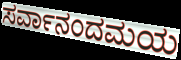
ಸರ್ವಾನಂದಮಯ